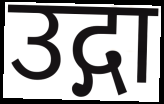
उद्गा